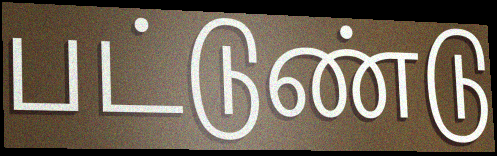
பட்டுண்டு